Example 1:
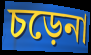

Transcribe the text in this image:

চড়েনা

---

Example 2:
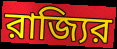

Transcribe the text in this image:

রাজ্যির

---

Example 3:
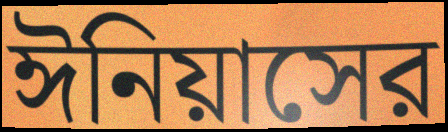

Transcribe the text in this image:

ঈনিয়াসের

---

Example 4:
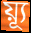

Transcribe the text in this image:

য়্যূ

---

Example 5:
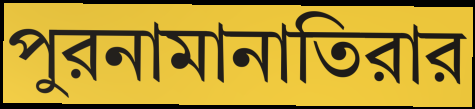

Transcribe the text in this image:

পুরনামানাতিরার